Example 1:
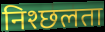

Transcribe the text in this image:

निश्छलता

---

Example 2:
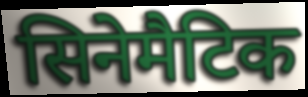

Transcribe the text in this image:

सिनेमैटिक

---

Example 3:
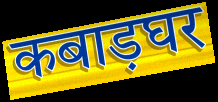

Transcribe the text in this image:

कबाड़घर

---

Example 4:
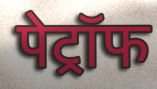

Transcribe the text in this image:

पेट्रॉफ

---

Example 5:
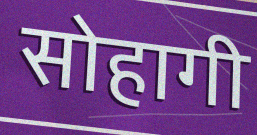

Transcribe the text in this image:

सोहागी